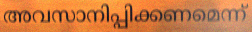
അവസാനിപ്പിക്കണമെന്ന്